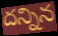
దన్నిన